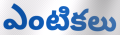
ఎంటికలు